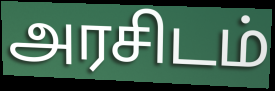
அரசிடம்